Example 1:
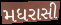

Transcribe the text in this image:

મધરાસી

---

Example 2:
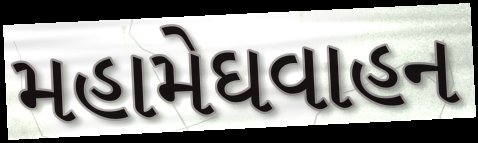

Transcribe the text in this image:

મહામેઘવાહન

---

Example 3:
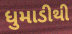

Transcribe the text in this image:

ધુમાડીથી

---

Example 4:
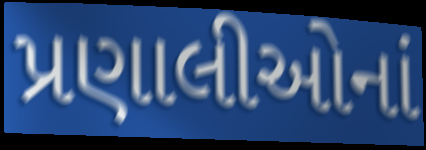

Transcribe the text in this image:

પ્રણાલીઓનાં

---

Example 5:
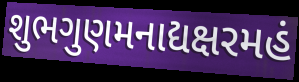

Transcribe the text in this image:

શુભગુણમનાદ્યક્ષરમહં